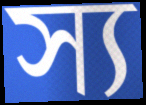
স্য